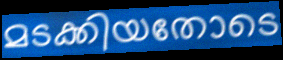
മടക്കിയതോടെ